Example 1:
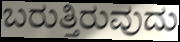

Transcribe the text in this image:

ಬರುತ್ತಿರುವುದು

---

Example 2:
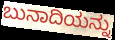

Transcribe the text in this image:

ಬುನಾದಿಯನ್ನು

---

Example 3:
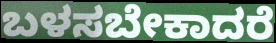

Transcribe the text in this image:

ಬಳಸಬೇಕಾದರೆ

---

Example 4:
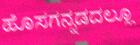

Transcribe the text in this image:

ಹೊಸಗನ್ನಡದಲ್ಲೂ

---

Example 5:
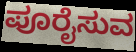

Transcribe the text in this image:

ಪೂರೈಸುವ